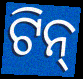
ଟିନ୍